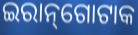
ଇରାନ୍‌ଗୋଟାକ